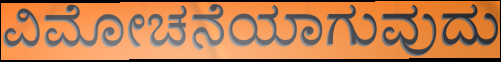
ವಿಮೋಚನೆಯಾಗುವುದು